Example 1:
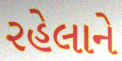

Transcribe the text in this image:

રહેલાને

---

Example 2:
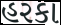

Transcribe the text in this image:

હરકા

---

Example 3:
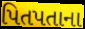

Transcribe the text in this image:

પિતપતાના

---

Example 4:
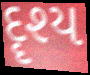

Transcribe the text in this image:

દૄશ્ય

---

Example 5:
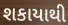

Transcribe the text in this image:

શકાયાથી